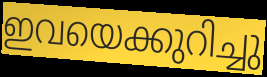
ഇവയെക്കുറിച്ചു